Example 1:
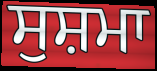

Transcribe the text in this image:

ਸੁਸ਼ਮਾ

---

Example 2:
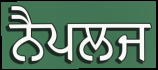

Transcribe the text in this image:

ਨੈਪਲਜ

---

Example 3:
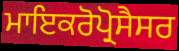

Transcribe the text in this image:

ਮਾਇਕਰੋਪ੍ਰੋਸੈਸਰ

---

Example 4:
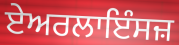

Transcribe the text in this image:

ਏਅਰਲਾਇੰਸਜ਼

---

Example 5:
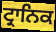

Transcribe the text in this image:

ਟ੍ਰਾਨਿਕ